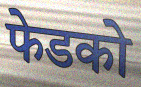
फेडको